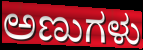
ಅಣುಗಳು